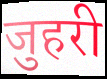
जुहरी